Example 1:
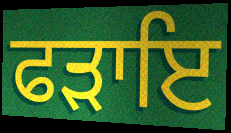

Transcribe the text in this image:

ਫੜਾਇ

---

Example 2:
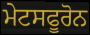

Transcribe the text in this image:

ਮੇਟਸਫੂਰੋਨ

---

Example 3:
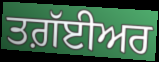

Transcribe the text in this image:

ਤਗ਼ੱਈਅਰ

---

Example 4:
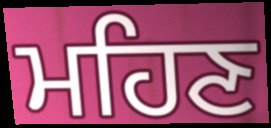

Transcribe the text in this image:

ਮਹਿਣ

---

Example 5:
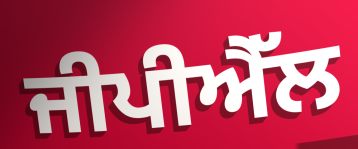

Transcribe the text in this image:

ਜੀਪੀਐੱਲ